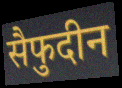
सैफुदीन